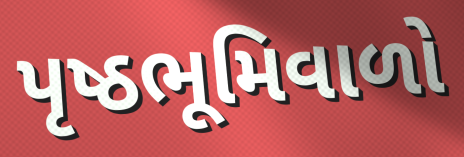
પૃષ્ઠભૂમિવાળો